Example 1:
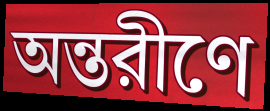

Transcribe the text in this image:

অন্তরীণে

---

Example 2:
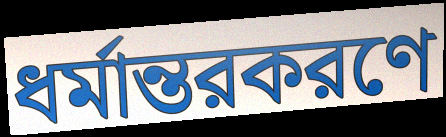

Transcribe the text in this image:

ধর্মান্তরকরণে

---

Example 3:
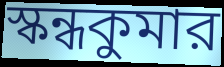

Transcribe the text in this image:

স্কন্ধকুমার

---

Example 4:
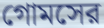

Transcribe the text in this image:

গোমসের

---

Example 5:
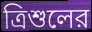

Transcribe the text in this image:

ত্রিশুলের